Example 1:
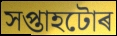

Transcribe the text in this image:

সপ্তাহটোৰ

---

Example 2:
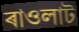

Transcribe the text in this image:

ৰাওলাট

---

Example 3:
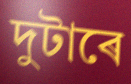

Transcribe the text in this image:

দুটাৰে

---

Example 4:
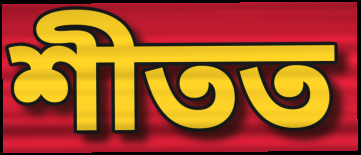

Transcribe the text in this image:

শীতত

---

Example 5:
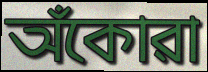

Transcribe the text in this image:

অঁকোৱা